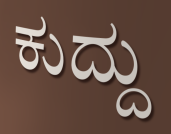
ಕುದ್ದು